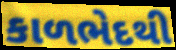
કાળભેદથી